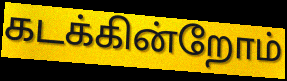
கடக்கின்றோம்